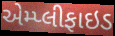
એમ્પ્લીફાઇડ